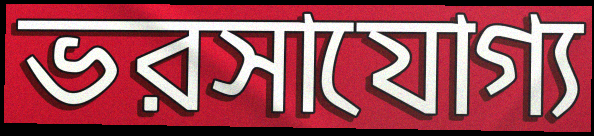
ভরসাযোগ্য